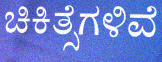
ಚಿಕಿತ್ಸೆಗಳಿವೆ